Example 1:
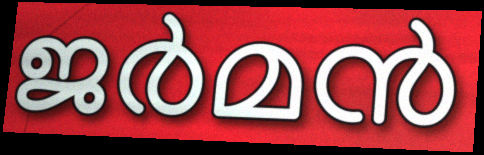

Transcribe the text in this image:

ജർമൻ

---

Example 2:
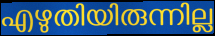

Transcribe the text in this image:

എഴുതിയിരുന്നില്ല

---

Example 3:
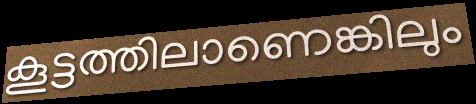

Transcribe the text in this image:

കൂട്ടത്തിലാണെങ്കിലും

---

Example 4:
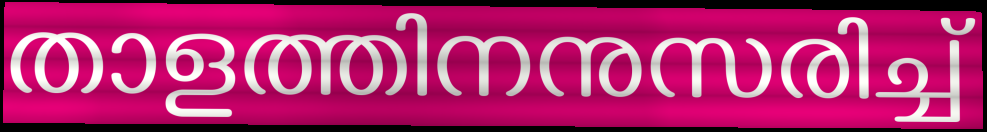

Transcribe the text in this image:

താളത്തിനനുസരിച്ച്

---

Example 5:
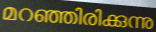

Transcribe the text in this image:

മറഞ്ഞിരിക്കുന്നു